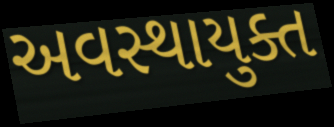
અવસ્થાયુક્ત